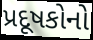
પ્રદૂષકોનો